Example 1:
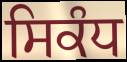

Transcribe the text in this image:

ਸਿਕੰਧ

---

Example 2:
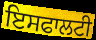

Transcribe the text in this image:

ਇਸਫਾਲਟੀ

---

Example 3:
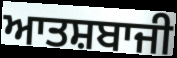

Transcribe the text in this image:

ਆਤਸ਼ਬਾਜੀ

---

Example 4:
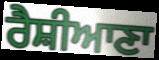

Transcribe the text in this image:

ਰੈਸ਼ੀਆਣਾ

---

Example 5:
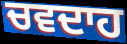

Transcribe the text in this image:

ਚਵਦਾਹ